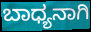
ಬಾಧ್ಯನಾಗಿ